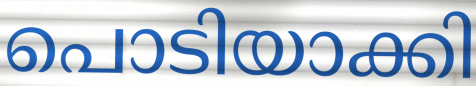
പൊടിയാക്കി